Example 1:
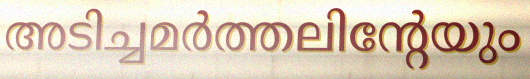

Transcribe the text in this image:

അടിച്ചമർത്തലിന്റേയും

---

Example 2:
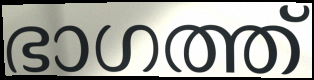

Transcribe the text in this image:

ഭാഗത്ത്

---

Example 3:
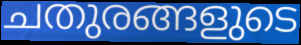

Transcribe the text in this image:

ചതുരങ്ങളുടെ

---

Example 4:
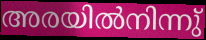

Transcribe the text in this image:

അരയിൽനിന്നു്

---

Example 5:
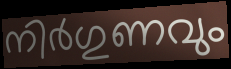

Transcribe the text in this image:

നിർഗുണവും